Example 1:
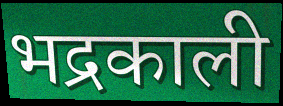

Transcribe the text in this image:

भद्रकाली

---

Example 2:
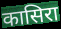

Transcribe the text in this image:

कासिरा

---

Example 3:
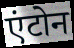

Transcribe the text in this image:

एंटोन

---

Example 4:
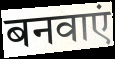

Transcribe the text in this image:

बनवाएं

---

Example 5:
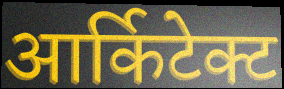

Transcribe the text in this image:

आर्किटेक्ट